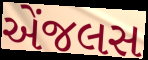
એંજલસ